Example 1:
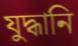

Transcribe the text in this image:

যুদ্ধানি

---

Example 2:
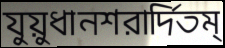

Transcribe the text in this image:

যুয়ুধানশরার্দিতম্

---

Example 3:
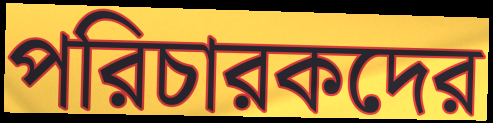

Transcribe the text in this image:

পরিচারকদের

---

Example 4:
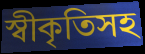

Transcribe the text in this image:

স্বীকৃতিসহ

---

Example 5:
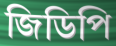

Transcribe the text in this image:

জিডিপি